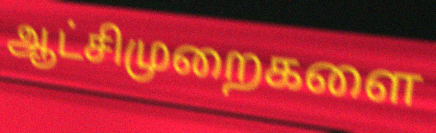
ஆட்சிமுறைகளை